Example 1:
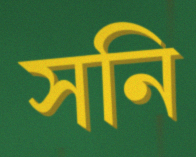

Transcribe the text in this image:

সনি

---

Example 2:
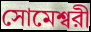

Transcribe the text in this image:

সোমেশ্বরী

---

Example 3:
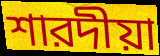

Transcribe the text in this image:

শারদীয়া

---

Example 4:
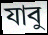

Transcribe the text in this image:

যাবু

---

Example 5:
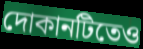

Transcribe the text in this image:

দোকানটিতেও